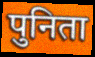
पुनिता